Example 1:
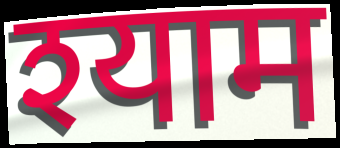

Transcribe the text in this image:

श्‍याम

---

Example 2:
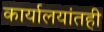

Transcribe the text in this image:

कार्यालयांतही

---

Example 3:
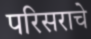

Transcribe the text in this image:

परिसराचे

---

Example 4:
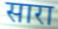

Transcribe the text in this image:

सारा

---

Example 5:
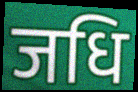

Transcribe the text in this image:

जधि